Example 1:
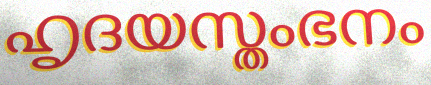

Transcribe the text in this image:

ഹൃദയസ്തംഭനം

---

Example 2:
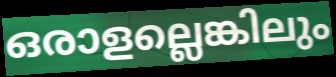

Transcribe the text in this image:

ഒരാളല്ലെങ്കിലും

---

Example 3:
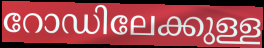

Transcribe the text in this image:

റോഡിലേക്കുള്ള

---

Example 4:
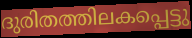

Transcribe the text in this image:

ദുരിതത്തിലകപ്പെട്ടു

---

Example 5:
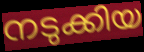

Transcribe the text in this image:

നടുക്കിയ